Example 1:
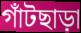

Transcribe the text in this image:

গাঁটছাড়া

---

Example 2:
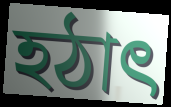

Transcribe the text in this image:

হঠাৎ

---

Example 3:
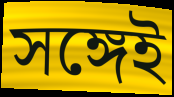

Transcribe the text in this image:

সঙ্গেই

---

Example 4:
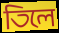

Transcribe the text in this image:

তিলে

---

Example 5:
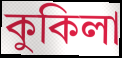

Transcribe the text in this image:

কুকিলা